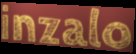
inzalo